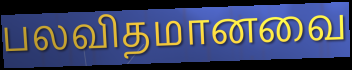
பலவிதமானவை